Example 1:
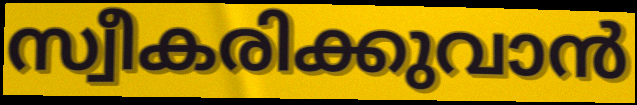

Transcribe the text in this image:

സ്വീകരിക്കുവാൻ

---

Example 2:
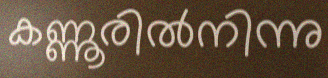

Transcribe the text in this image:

കണ്ണൂരിൽനിന്നു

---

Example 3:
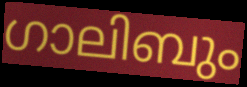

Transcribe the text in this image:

ഗാലിബും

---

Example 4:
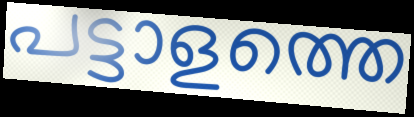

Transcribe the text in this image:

പട്ടാളത്തെ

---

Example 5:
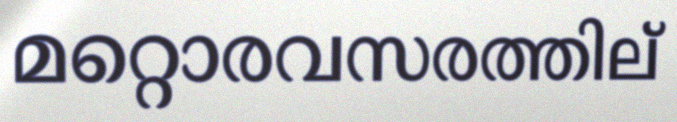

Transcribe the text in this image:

മറ്റൊരവസരത്തില്